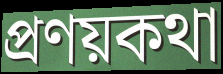
প্রণয়কথা